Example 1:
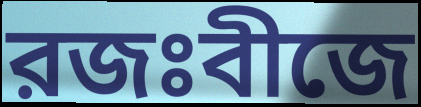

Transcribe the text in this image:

রজঃবীজে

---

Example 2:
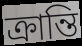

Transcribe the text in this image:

ক্রান্তি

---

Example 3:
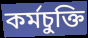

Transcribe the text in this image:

কর্মচুক্তি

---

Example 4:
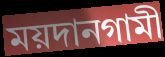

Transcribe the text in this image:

ময়দানগামী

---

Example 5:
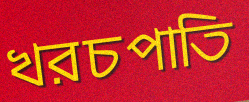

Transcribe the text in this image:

খরচপাতি